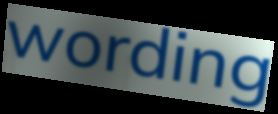
wording